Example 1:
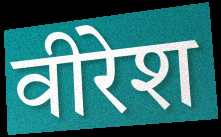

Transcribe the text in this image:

वीरेश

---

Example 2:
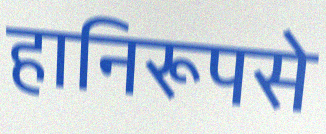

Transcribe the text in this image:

हानिरूपसे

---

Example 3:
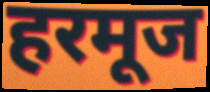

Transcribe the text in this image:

हरमूज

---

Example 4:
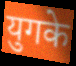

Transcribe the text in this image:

युगके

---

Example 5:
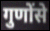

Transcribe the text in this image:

गुणोंसे